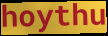
hoythu